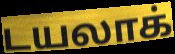
டயலாக்